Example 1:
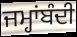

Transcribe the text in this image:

ਜਮ੍ਹਾਂਬੰਦੀ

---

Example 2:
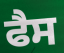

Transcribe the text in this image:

ਫੈਸ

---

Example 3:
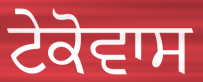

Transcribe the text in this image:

ਟੇਕੋਵਾਸ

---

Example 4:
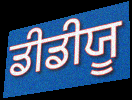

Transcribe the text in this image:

ਡੀਡੀਯੂ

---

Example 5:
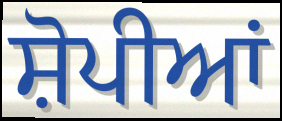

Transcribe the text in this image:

ਸ਼ੋਪੀਆਂ